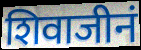
शिवाजीनं